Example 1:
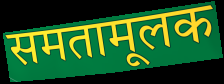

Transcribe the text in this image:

समतामूलक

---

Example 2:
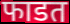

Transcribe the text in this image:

फाडत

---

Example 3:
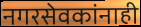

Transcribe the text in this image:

नगरसेवकांनाही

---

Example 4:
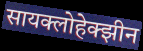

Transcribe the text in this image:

सायक्लोहेक्झीन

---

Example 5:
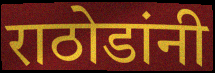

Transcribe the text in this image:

राठोडांनी